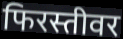
फिरस्तीवर